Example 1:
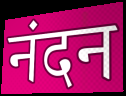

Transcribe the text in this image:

नंदन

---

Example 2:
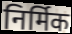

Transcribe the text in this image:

निर्मिक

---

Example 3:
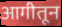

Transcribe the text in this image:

आगीतून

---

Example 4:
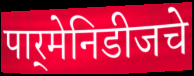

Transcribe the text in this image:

पार्मेनिडीजचे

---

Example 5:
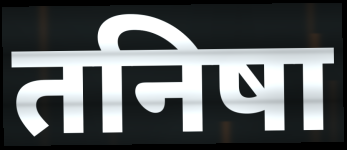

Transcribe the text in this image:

तनिषा